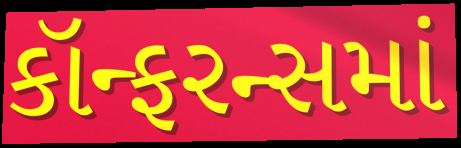
કૉન્ફરન્સમાં